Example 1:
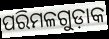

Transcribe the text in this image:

ପରିମଳଗୁଡ଼ାକ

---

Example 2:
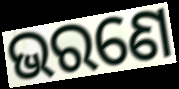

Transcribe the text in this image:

ଭରଣେ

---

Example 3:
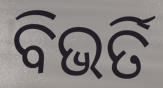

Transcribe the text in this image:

ବିଭର୍ତି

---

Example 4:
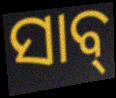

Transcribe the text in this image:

ସାବ୍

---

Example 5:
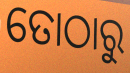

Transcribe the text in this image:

ତୋଠାରୁ